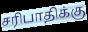
சரிபாதிக்கு